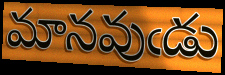
మానవుఁడు